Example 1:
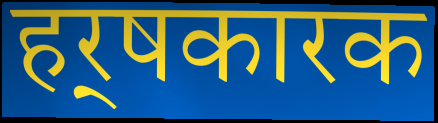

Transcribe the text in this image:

हर्षकारक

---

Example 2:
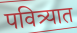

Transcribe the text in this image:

पवित्र्यात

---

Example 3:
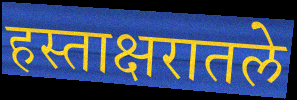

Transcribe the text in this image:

हस्ताक्षरातले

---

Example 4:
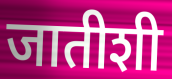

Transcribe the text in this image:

जातीशी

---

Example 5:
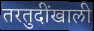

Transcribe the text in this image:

तरतुदींखाली